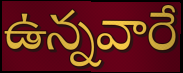
ఉన్నవారే